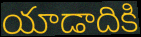
యాడాదికి